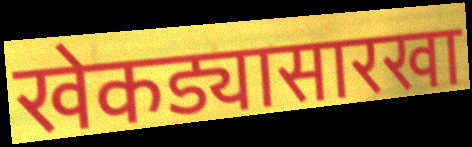
खेकड्यासारखा